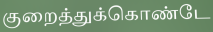
குறைத்துக்கொண்டே